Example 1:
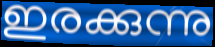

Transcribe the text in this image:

ഇരക്കുന്നു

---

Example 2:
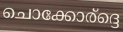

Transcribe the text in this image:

ചൊക്കോര്ദ്ദെ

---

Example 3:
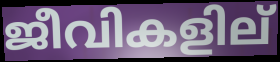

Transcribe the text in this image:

ജീവികളില്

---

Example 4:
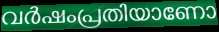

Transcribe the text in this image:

വർഷംപ്രതിയാണോ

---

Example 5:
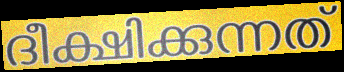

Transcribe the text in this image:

ദീക്ഷിക്കുന്നത്